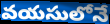
వయసులోనే